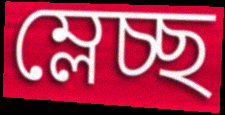
ম্লেচ্ছ